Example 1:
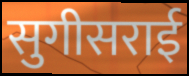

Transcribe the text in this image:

सुगीसराई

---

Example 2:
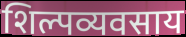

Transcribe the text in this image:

शिल्पव्यवसाय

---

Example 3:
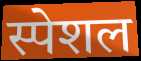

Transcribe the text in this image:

स्पेशल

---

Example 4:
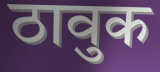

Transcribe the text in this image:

ठावुक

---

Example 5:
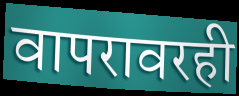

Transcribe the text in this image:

वापरावरही